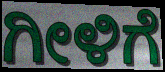
ಗೀಳಿಗೆ